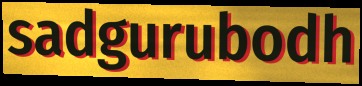
sadgurubodh